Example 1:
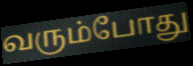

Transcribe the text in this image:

வரும்போது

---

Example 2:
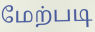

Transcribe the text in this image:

மேற்படி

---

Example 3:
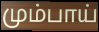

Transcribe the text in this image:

மும்பாய்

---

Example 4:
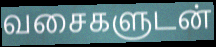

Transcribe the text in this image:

வசைகளுடன்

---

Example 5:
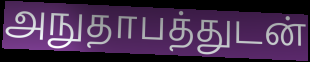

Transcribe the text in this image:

அநுதாபத்துடன்